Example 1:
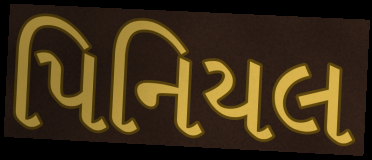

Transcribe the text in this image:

પિનિયલ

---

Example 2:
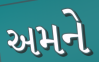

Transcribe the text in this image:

અમને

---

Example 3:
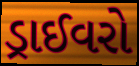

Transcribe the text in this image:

ડ્રાઈવરો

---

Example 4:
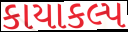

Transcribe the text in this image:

કાયાકલ્પ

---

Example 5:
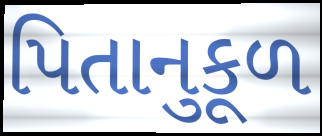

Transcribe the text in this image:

પિતાનુકૂળ